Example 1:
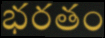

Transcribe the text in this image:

భరతం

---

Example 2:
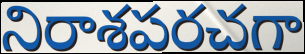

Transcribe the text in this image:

నిరాశపరచగా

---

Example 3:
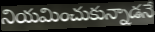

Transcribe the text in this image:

నియమించుకున్నాడనే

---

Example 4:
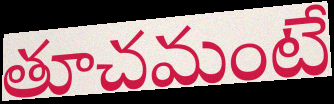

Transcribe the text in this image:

తూచమంటే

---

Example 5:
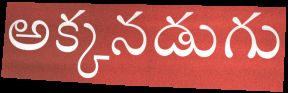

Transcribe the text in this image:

అక్కనడుగు